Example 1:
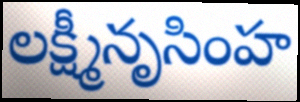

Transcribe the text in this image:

లక్ష్మీనృసింహ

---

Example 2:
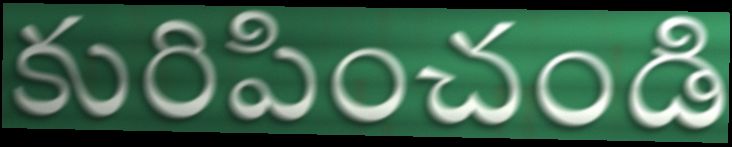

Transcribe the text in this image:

కురిపించండి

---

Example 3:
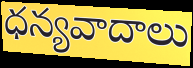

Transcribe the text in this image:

ధన్యవాదాలు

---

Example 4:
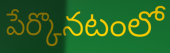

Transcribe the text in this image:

పేర్కొనటంలో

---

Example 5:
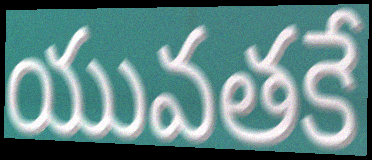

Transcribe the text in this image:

యువతకే